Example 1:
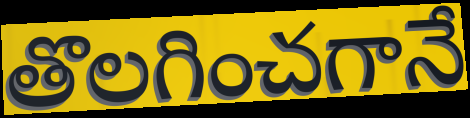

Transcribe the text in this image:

తొలగించగానే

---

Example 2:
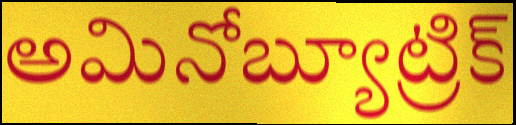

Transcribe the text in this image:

అమినోబ్యూట్రిక్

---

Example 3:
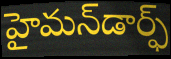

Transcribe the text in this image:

హైమన్‌డార్ఫ్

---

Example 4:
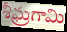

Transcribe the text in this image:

శీఘ్రగామి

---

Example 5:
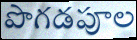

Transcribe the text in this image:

పొగడపూల